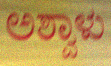
ಅಶ್ವಾಳು